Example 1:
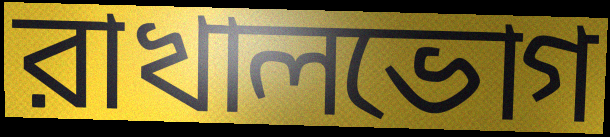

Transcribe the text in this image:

রাখালভোগ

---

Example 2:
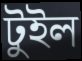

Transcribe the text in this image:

টুইল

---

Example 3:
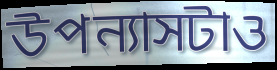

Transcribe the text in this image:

উপন্যাসটাও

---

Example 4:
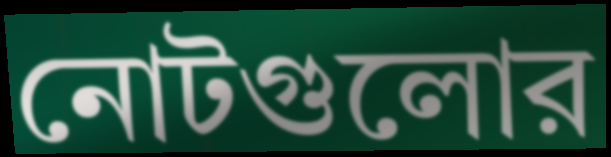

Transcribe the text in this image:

নোটগুলোর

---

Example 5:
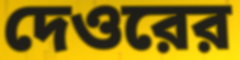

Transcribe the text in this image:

দেওরের